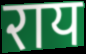
राय